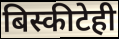
बिस्कीटेही